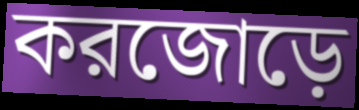
করজোড়ে